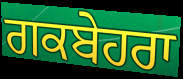
ਗਕਬੇਹਰਾ